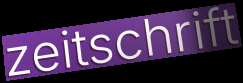
zeitschrift